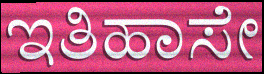
ಇತಿಹಾಸೇ